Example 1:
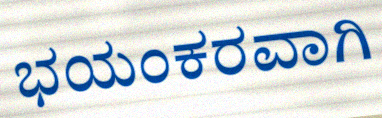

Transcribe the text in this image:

ಭಯಂಕರವಾಗಿ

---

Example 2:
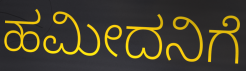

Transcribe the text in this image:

ಹಮೀದನಿಗೆ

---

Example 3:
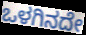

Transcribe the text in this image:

ಒಳಗಿನದೇ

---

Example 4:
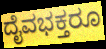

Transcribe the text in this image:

ದೈವಭಕ್ತರೂ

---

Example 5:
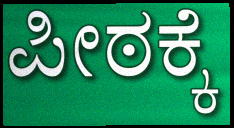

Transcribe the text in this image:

ಪೀಠಕ್ಕೆ